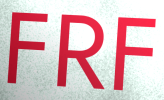
FRF